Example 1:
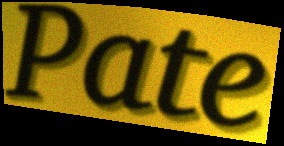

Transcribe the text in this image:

Pate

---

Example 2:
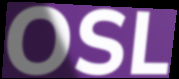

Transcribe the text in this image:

OSL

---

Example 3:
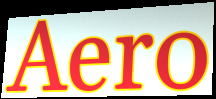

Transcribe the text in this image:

Aero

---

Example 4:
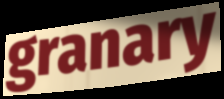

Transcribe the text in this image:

granary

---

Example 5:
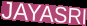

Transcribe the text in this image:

JAYASRI